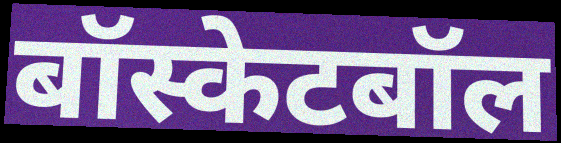
बॉस्केटबॉल